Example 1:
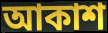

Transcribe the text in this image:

আকাশ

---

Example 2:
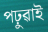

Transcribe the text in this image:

পঢ়ুৱাই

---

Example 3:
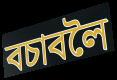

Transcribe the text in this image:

বচাবলৈ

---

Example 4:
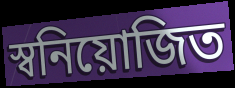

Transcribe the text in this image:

স্বনিয়োজিত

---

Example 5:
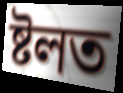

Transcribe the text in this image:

ষ্টলত